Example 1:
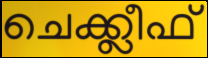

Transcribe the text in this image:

ചെക്ക്ലീഫ്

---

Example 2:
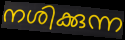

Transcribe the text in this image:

നശിക്കുന്ന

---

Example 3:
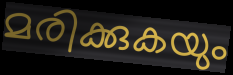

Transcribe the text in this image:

മരിക്കുകയും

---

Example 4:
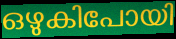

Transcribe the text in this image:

ഒഴുകിപോയി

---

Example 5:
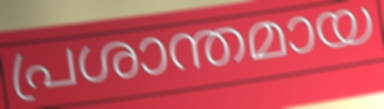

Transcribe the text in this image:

പ്രശാന്തമായ